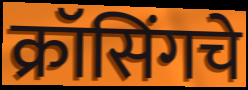
क्रॉसिंगचे